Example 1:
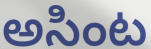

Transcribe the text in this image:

అసింట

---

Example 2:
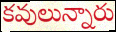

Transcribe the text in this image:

కవులున్నారు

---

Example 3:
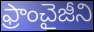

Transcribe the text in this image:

ఫ్రాంచైజీని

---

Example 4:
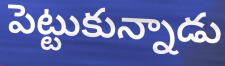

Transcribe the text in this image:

పెట్టుకున్నాడు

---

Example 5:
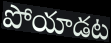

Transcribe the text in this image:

పోయాడట